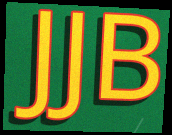
JJB